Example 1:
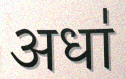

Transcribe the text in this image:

अधा॑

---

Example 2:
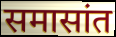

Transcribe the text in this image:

समासांत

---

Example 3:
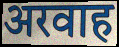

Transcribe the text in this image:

अरवाह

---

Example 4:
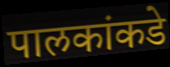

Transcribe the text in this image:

पालकांकडे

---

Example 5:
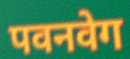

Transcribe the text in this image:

पवनवेग